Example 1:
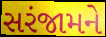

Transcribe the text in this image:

સરંજામને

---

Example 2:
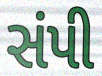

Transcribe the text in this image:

સંપી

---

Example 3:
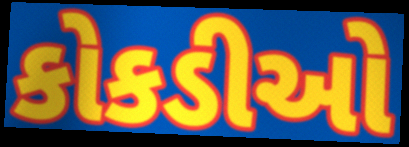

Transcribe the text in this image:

કોકડીઓ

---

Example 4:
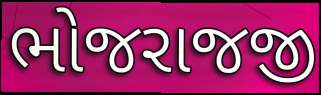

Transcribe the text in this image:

ભોજરાજજી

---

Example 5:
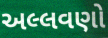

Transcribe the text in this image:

અલ્લવણો